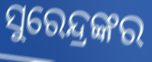
ସୁରେନ୍ଦ୍ରଙ୍କର